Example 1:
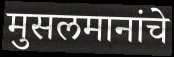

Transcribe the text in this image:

मुसलमानांचे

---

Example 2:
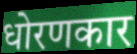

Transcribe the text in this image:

धोरणकार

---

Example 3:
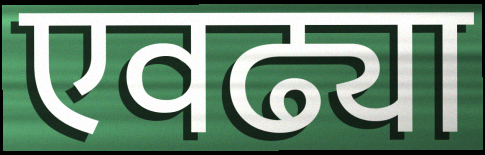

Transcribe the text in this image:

एवढ्या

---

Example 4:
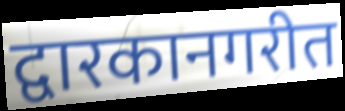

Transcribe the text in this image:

द्वारकानगरीत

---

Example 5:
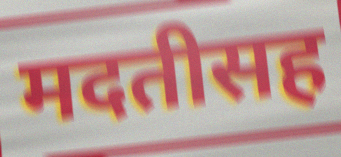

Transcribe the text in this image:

मदतीसह